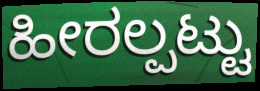
ಹೀರಲ್ಪಟ್ಟು